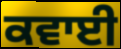
ਕਵਾਈ